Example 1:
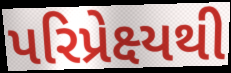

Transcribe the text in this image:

પરિપ્રેક્ષ્યથી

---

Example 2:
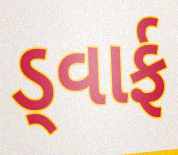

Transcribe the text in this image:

ડ્વાર્ફ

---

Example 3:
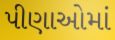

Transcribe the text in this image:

પીણાઓમાં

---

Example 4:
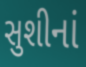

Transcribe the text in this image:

સુશીનાં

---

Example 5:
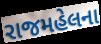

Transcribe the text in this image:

રાજમહેલના